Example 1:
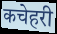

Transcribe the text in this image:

कचेहरी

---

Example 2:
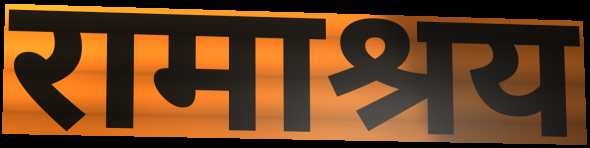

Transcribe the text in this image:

रामाश्रय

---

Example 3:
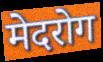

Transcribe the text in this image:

मेदरोग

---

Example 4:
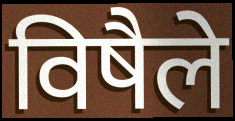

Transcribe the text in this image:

विषैले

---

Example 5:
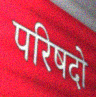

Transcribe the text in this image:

परिषदो